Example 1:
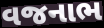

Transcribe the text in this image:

વજનાભ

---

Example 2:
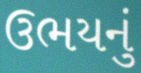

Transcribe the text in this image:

ઉભયનું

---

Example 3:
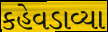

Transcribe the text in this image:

કહેવડાવ્યા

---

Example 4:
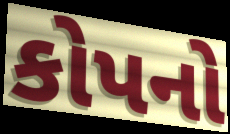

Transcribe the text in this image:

કોપનો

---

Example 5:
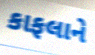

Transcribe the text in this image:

કાફલાને